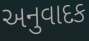
અનુવાદક